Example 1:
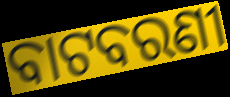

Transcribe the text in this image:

ବାଟବରଣୀ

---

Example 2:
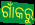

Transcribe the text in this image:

ଗାଁକରୁ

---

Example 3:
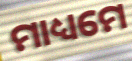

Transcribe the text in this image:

ମାଧ୍ୟମେ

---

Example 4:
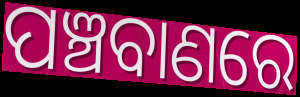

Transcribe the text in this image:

ପଞ୍ଚବାଣରେ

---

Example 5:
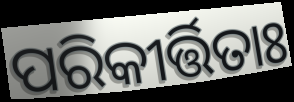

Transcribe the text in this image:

ପରିକୀର୍ତ୍ତିତାଃ